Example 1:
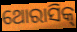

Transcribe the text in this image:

ଥୋରାସିକ୍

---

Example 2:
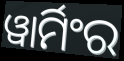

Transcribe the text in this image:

ୱାର୍ମିଂର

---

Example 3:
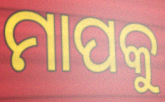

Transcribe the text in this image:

ମାପକୁ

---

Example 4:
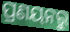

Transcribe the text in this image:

ପ୍ରଣୟନରୁ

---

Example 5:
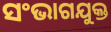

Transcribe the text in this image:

ସଂଭାଗଯୁକ୍ତ